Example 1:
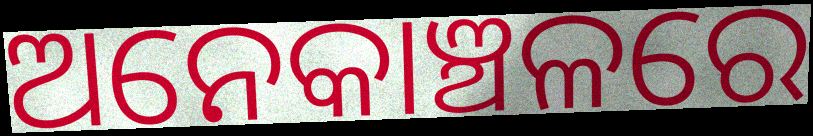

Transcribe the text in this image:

ଅନେକାଞ୍ଚଳରେ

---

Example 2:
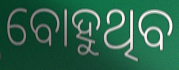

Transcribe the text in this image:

ବୋହୁଥିବ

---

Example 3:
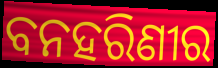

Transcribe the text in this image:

ବନହରିଣୀର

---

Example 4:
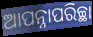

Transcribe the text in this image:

ଆପନ୍ନାପରିଚ୍ଛା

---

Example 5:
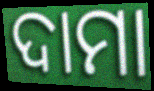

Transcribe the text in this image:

ଦାମା